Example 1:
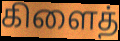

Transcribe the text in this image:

கிளைத்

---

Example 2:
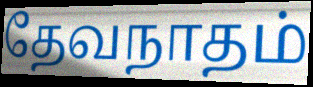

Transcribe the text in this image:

தேவநாதம்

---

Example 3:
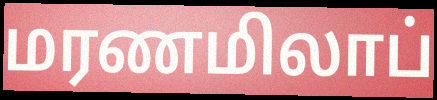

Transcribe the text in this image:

மரணமிலாப்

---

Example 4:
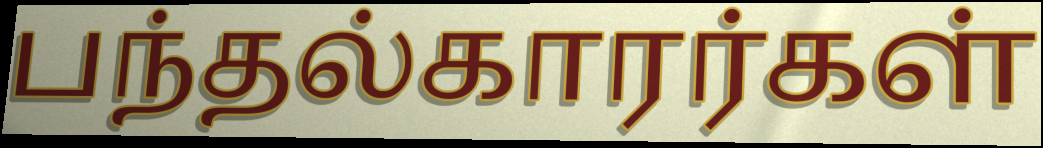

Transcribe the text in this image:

பந்தல்காரர்கள்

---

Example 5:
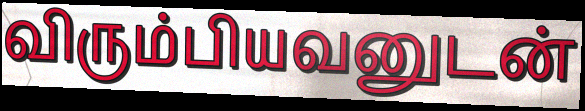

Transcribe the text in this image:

விரும்பியவனுடன்